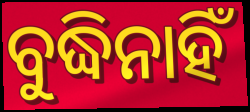
ବୁଦ୍ଧିନାହିଁ